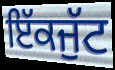
ਇੱਕਜੁੱਟ